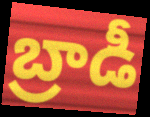
బ్రాడీ